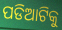
ପଡିଆଟିକୁ